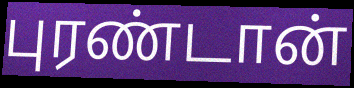
புரண்டான்